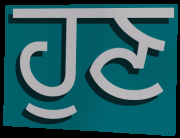
ਹੁਣ